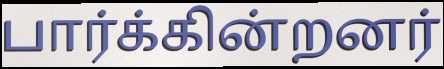
பார்க்கின்றனர்